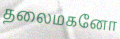
தலைமகனோ